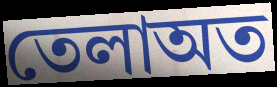
তেলাঅত